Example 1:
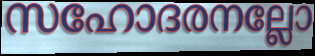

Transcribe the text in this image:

സഹോദരനല്ലോ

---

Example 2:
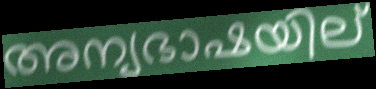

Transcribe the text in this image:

അന്യഭാഷയില്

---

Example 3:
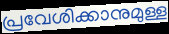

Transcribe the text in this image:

പ്രവേശിക്കാനുമുള്ള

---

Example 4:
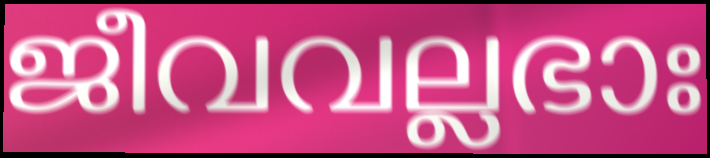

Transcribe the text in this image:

ജീവവല്ലഭാഃ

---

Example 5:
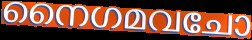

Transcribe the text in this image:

നൈഗമവചോ